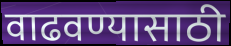
वाढवण्यासाठी